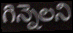
గిన్నెలని